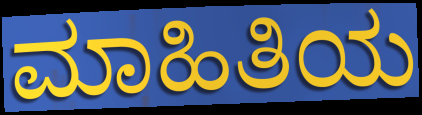
ಮಾಹಿತಿಯ